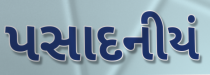
પસાદનીયં